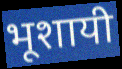
भूशायी